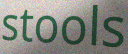
stools